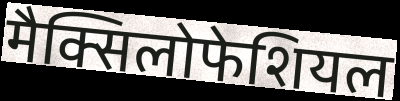
मैक्सिलोफेशियल